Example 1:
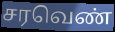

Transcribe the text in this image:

சரவெண்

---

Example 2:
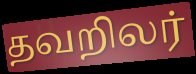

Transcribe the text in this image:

தவறிலர்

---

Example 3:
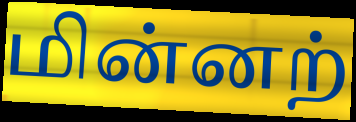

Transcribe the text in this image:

மின்னற்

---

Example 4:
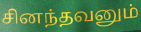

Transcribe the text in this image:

சினந்தவனும்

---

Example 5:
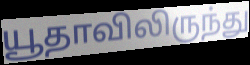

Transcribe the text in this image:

யூதாவிலிருந்து